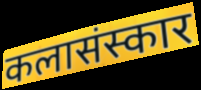
कलासंस्कार